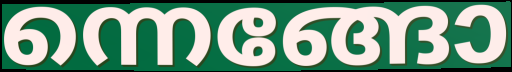
ന്നെങ്ങോ